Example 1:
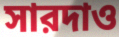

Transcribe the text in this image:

সারদাও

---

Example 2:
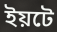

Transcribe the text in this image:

ইয়টে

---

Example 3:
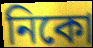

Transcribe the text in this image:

নিকো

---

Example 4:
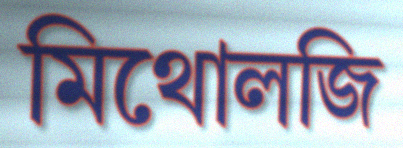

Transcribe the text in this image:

মিথোলজি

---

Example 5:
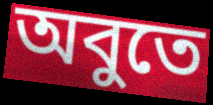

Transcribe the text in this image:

অবুতে